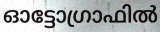
ഓട്ടോഗ്രാഫിൽ